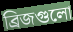
ব্রিজগুলো